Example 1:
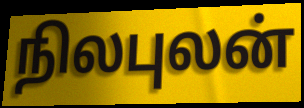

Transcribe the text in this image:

நிலபுலன்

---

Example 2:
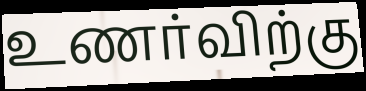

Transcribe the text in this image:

உணர்விற்கு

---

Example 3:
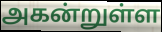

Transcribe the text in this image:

அகன்றுள்ள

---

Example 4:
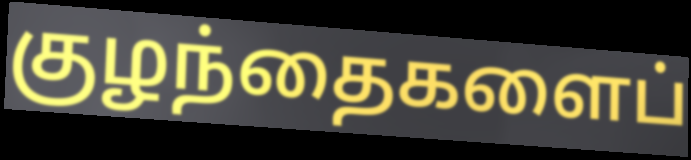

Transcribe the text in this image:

குழந்தைகளைப்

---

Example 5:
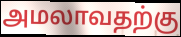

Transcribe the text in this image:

அமலாவதற்கு